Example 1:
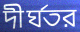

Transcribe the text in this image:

দীর্ঘতর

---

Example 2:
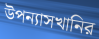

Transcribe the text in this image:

উপন্যাসখানির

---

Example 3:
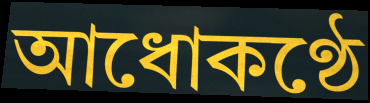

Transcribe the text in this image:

আধোকণ্ঠে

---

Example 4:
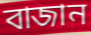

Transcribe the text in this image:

বাজান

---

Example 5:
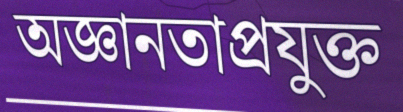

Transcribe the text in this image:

অজ্ঞানতাপ্রযুক্ত